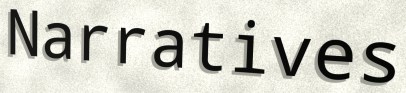
Narratives